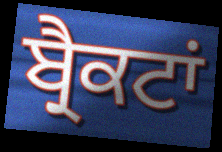
ਬ੍ਰੈਕਟਾਂ